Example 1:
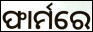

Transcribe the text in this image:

ଫାର୍ମରେ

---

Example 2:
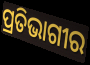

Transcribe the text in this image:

ପ୍ରତିଭାଗୀର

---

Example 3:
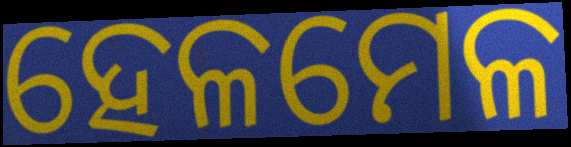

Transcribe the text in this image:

ହେଳମେଳ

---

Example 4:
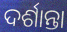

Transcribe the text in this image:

ଦର୍ଶାନ୍ତା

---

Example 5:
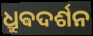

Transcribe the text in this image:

ଧ୍ରୁଵଦର୍ଶନ